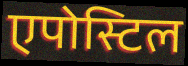
एपोस्टिल